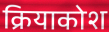
क्रियाकोश